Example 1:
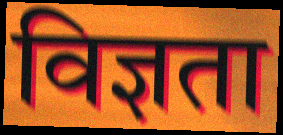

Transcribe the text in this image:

विज्ञता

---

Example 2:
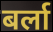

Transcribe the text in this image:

बर्ला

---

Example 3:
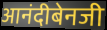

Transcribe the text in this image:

आनंदीबेनजी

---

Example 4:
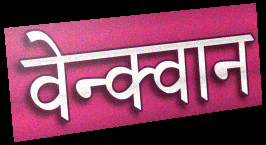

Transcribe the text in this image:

वेन्क्वान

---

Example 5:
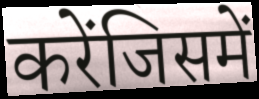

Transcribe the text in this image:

करेंजिसमें